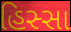
હિસ્સા